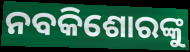
ନବକିଶୋରଙ୍କୁ